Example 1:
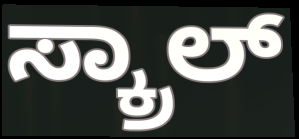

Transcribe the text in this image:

ಸ್ಕ್ರಾಲ್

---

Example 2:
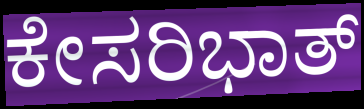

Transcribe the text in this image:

ಕೇಸರಿಭಾತ್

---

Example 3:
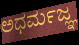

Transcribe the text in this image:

ಅಧರ್ಮಜ್ಞ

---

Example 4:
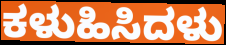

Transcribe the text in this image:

ಕಳುಹಿಸಿದಳು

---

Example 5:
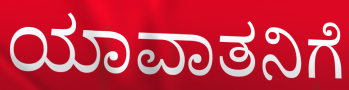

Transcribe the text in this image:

ಯಾವಾತನಿಗೆ